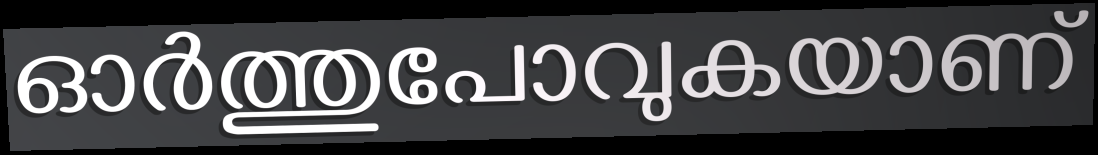
ഓർത്തുപോവുകയാണ്